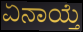
ಏನಾಯ್ತೆ